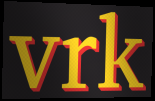
vrk